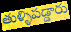
తుళ్ళిపడ్డారు